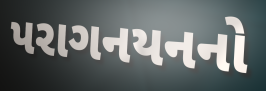
પરાગનયનનો